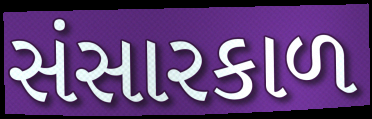
સંસારકાળ